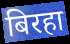
बिरहा